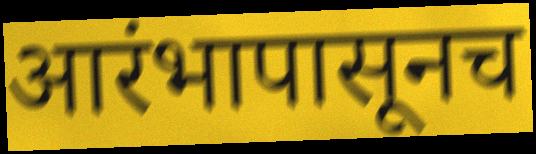
आरंभापासूनच